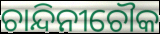
ଚାନ୍ଦିନୀଚୌକ